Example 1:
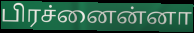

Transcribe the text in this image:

பிரச்னைன்னா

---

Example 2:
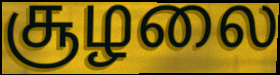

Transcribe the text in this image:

சூழலை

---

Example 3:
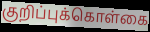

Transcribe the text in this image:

குறிப்புக்கொள்கை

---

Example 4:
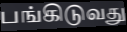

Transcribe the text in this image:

பங்கிடுவது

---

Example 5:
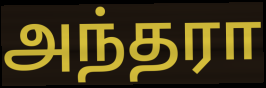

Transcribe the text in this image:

அந்தரா